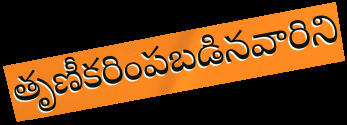
తృణీకరింపబడినవారిని